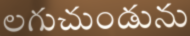
లగుచుండును